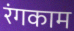
रंगकाम